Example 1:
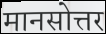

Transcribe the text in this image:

मानसोत्तर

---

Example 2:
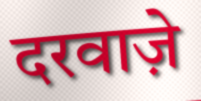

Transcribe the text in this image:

दरवाज़े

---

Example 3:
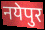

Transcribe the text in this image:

नयेपुर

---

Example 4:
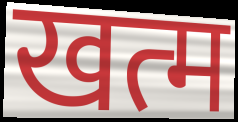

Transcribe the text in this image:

खत्‍म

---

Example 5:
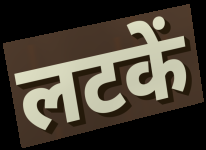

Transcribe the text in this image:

लटकें